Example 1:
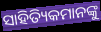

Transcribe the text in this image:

ସାହିତ୍ୟିକମାନଙ୍କୁ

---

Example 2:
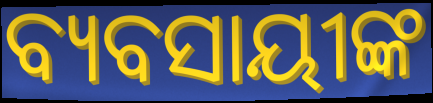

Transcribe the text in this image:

ବ୍ୟବସାୟୀଙ୍କ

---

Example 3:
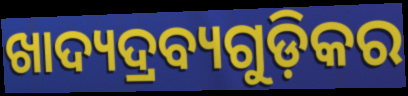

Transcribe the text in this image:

ଖାଦ୍ୟଦ୍ରବ୍ୟଗୁଡ଼ିକର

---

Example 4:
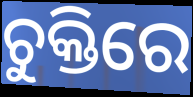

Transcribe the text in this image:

ଚୁକ୍ତିରେ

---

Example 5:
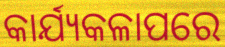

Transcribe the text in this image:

କାର୍ଯ୍ୟକଳାପରେ